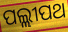
ପଲ୍ଲୀପଥ